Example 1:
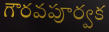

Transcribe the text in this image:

గౌరవపూర్వక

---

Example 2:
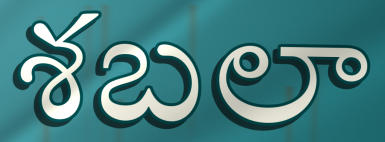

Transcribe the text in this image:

శబలా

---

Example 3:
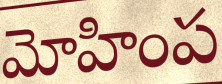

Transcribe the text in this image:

మోహింప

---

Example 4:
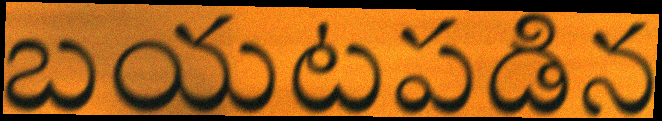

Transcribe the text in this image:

బయటపడిన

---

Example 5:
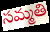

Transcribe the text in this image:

సమ్మతి